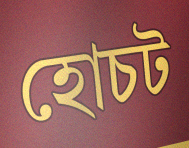
হোচট